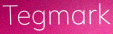
Tegmark